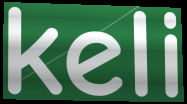
keli